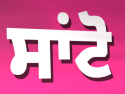
ਸਾਂਟੋ